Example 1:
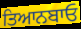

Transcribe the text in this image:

ਤਿਆਨਬਾਓ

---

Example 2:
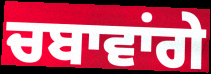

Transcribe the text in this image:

ਚਬਾਵਾਂਗੇ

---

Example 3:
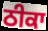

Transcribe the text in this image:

ਠੀਕਾ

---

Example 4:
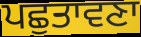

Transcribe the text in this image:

ਪਛੁਤਾਵਣਾ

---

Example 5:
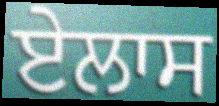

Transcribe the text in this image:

ਏਲਾਸ